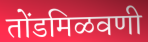
तोंडमिळवणी